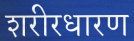
शरीरधारण